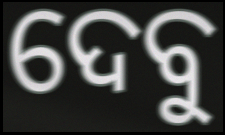
ଦେବୁ